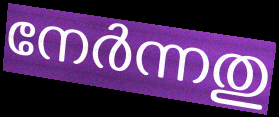
നേർന്നതു